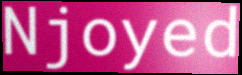
Njoyed